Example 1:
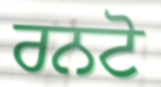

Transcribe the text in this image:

ਰਨਟੋ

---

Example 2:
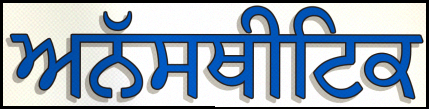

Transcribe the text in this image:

ਅਨੱਸਥੀਟਿਕ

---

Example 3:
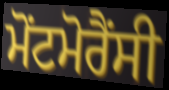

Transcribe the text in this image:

ਮੋਂਟਮੋਰੈਂਸੀ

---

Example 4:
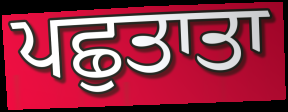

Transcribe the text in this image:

ਪਛੁਤਾਤਾ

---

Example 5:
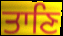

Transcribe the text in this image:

ਤਾਣਿ